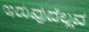
ಇರುವುದೆಲ್ಲವ